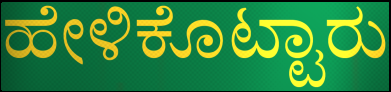
ಹೇಳಿಕೊಟ್ಟಾರು